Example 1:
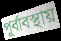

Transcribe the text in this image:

পূর্বাবস্থায়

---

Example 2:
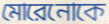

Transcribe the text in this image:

মোরেনোকে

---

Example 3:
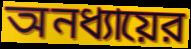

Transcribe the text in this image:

অনধ্যায়ের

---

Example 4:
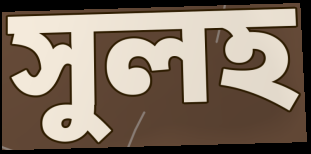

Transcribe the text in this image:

সুলহ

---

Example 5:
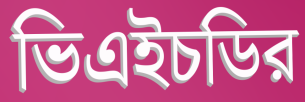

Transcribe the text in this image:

ভিএইচডির